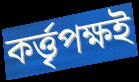
কৰ্ত্তৃপক্ষই